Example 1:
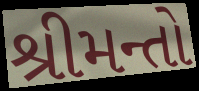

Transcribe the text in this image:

શ્રીમન્તો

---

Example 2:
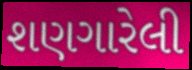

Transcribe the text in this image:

શણગારેલી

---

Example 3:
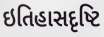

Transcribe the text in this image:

ઇતિહાસદૃષ્ટિ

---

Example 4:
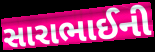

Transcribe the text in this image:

સારાભાઈની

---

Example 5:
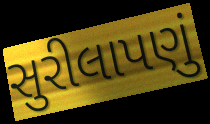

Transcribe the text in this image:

સુરીલાપણું